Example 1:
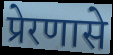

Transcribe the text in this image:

प्रेरणासे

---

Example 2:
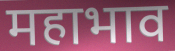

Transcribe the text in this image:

महाभाव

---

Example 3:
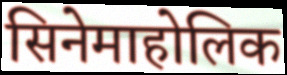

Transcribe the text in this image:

सिनेमाहोलिक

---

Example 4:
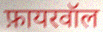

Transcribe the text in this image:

फ़ायरवॉल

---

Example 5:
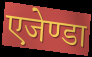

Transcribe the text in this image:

एजेण्डा